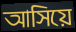
আসিয়ে